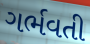
ગર્ભવતી